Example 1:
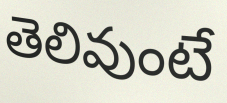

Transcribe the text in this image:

తెలివుంటే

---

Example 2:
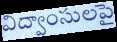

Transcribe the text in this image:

విద్వాంసులపై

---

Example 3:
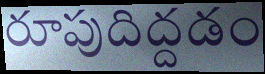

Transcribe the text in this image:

రూపుదిద్దడం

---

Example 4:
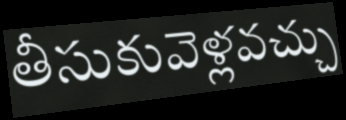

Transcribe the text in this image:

తీసుకువెళ్లవచ్చు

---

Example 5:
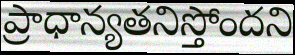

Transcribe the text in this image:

ప్రాధాన్యతనిస్తోందని